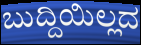
ಬುದ್ದಿಯಿಲ್ಲದ